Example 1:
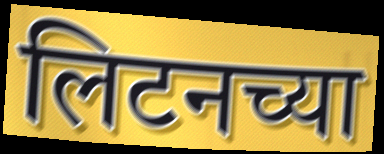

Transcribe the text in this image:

लिटनच्या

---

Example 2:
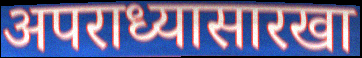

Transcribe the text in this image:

अपराध्यासारखा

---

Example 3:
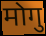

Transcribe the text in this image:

मोगु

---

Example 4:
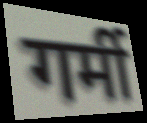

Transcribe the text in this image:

गर्मी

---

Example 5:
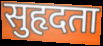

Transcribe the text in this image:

सुहृदता